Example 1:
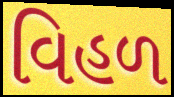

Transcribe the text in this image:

વિહળ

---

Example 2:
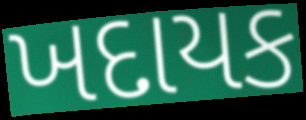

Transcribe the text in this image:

ખદાયક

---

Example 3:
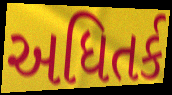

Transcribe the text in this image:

અધિતર્ક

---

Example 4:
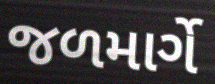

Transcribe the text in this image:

જળમાર્ગે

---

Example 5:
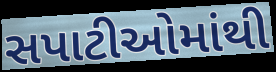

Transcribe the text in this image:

સપાટીઓમાંથી